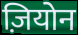
ज़ियोन